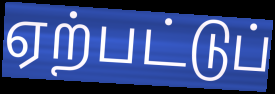
ஏற்பட்டுப்